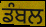
ਡੰਬਲ